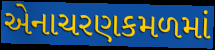
એનાચરણકમળમાં